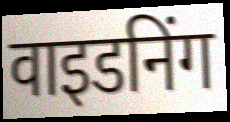
वाइडनिंग